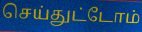
செய்துட்டோம்